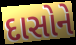
દાસોને